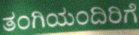
ತಂಗಿಯಂದಿರಿಗೆ